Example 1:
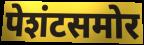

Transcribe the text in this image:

पेशंटसमोर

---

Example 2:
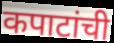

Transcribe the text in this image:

कपाटांची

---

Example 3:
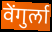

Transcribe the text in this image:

वेंगुर्ला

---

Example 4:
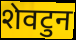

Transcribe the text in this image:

शेवटुन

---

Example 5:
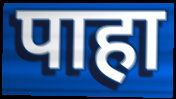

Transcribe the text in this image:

पाहा